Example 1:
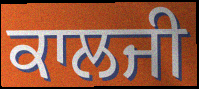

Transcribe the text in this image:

ਕਾਲਜੀ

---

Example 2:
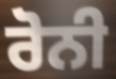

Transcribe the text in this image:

ਰੋਨੀ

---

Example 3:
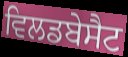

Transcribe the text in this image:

ਵਿਲਡਬੇਸੈਟ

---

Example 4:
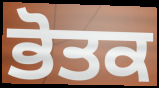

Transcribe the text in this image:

ਭੋਤਕ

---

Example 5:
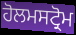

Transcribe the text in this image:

ਹੋਲਮਸਟ੍ਰੋਮ